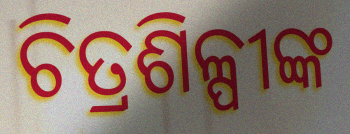
ଚିତ୍ରଶିଳ୍ପୀଙ୍କ